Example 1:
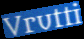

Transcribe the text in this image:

Vrutti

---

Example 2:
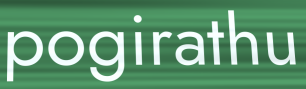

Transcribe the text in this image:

pogirathu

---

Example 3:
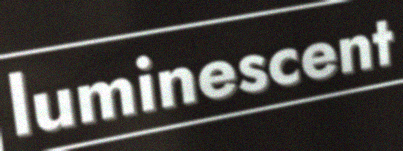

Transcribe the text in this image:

luminescent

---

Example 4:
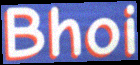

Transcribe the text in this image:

Bhoi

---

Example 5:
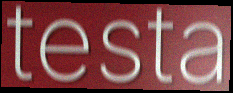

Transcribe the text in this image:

testa